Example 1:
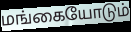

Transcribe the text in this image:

மங்கையோடும்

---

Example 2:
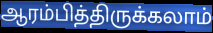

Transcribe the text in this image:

ஆரம்பித்திருக்கலாம்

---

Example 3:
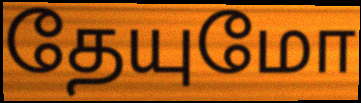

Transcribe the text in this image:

தேயுமோ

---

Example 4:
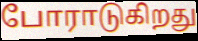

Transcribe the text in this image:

போராடுகிறது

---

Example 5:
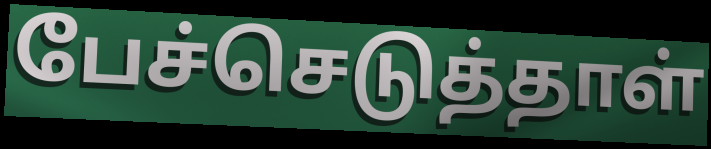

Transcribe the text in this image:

பேச்செடுத்தாள்